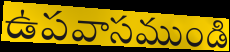
ఉపవాసముండి